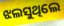
ଝଲସୁଥିଲେ